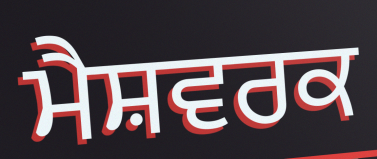
ਮੈਸ਼ਵਰਕ